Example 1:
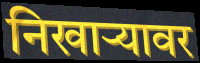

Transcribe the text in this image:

निखार्‍यावर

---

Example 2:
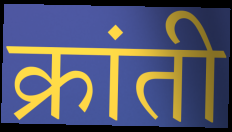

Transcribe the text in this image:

क्रांती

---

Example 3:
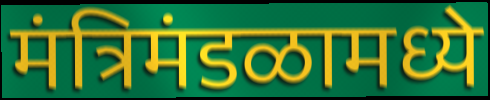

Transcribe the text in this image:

मंत्रिमंडळामध्ये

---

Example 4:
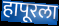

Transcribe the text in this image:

हापूरला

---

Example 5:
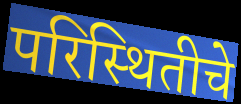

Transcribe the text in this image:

परिस्थितीचे